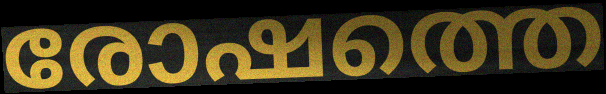
രോഷത്തെ